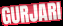
GURJARI